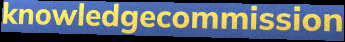
knowledgecommission